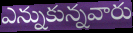
ఎన్నుకున్నవారు